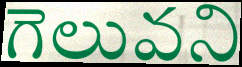
గెలువని